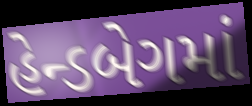
હેન્ડબેગમાં